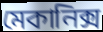
মেকানিক্স